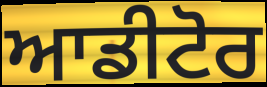
ਆਡੀਟੋਰ